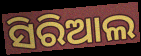
ସିରିଆଲ